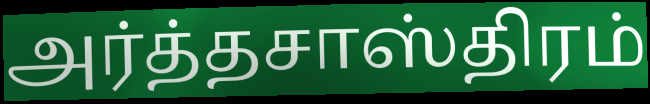
அர்த்தசாஸ்திரம்